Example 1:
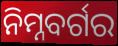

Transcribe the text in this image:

ନିମ୍ନବର୍ଗର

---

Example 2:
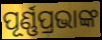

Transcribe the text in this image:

ପୂର୍ଣ୍ଣପ୍ରଭାଙ୍କ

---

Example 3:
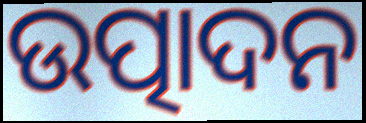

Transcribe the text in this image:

ଉତ୍ପାଦନ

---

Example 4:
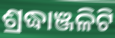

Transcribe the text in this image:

ଶ୍ରଦ୍ଧାଞ୍ଜଳିଟି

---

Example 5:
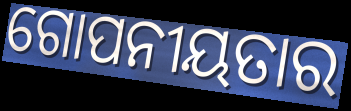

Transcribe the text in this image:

ଗୋପନୀୟତାର